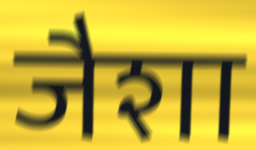
जैशा